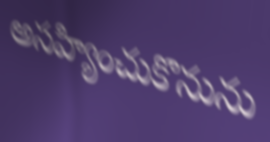
అసహ్యించుకొనును